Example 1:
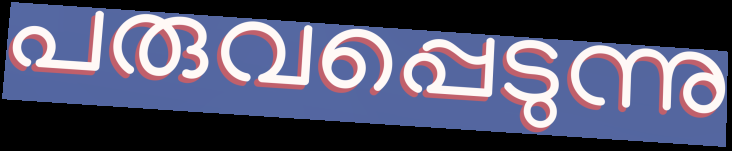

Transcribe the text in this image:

പരുവപ്പെടുന്നു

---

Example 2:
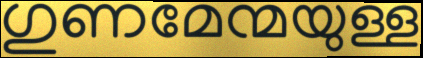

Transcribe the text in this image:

ഗുണമേന്മയുള്ള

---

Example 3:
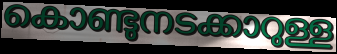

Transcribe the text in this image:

കൊണ്ടുനടക്കാറുള്ള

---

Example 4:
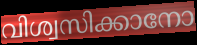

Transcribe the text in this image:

വിശ്വസിക്കാനോ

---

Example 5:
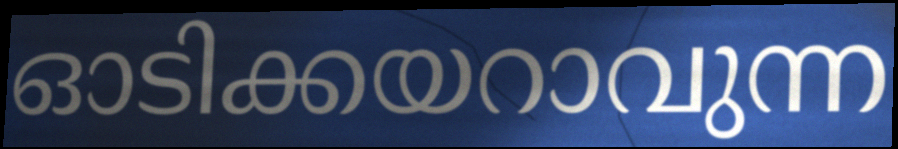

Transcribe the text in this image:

ഓടിക്കയറാവുന്ന